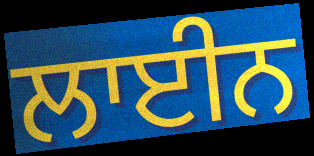
ਲਾਈਨ